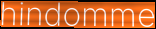
hindomme